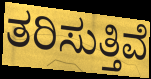
ತರಿಸುತ್ತಿವೆ